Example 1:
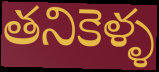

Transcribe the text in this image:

తనికెళ్ళ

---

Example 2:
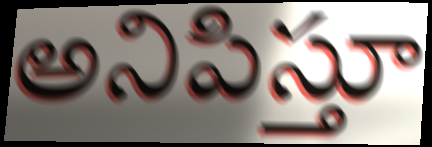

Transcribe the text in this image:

అనిపిస్తూ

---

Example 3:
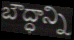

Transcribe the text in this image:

బౌద్ధాన్ని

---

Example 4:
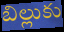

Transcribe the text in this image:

బిల్లుకు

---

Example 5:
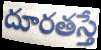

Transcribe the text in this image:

దూరతస్తే